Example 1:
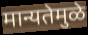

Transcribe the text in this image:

मान्यतेमुळे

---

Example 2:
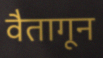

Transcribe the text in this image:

वैतागून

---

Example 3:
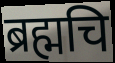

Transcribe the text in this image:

ब्रह्मचि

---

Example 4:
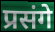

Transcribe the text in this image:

प्रसंगे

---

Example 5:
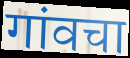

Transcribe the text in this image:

गांवचा